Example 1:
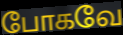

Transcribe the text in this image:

போகவே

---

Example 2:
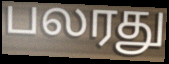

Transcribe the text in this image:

பலரது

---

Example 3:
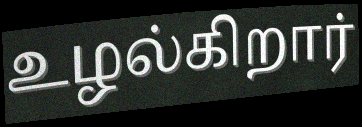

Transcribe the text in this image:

உழல்கிறார்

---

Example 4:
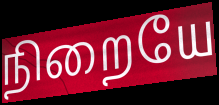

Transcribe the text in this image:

நிறையே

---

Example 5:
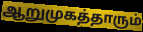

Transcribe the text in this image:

ஆறுமுகத்தாரும்